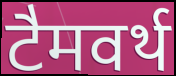
टैमवर्थ